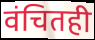
वंचितही